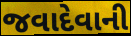
જવાદેવાની